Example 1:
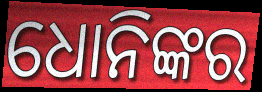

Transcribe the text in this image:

ଧୋନିଙ୍କର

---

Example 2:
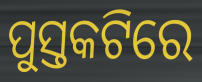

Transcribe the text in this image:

ପୁସ୍ତକଟିରେ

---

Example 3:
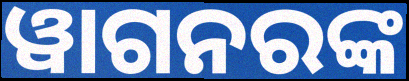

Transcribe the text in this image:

ୱାଗନରଙ୍କ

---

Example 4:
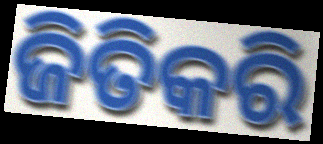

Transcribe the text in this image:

ଜିତିକରି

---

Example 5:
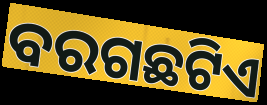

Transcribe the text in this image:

ବରଗଛଟିଏ